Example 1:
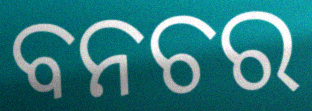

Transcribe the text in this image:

ବନଚର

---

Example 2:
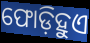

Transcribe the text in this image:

ଫୋଡ଼ିହୁଏ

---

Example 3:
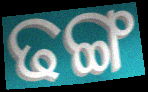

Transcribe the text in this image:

ଢଙ୍ଗ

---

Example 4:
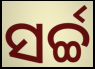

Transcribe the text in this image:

ସର୍ଚ୍ଚ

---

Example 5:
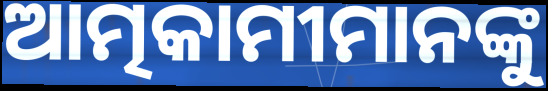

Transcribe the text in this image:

ଆତ୍ମକାମୀମାନଙ୍କୁ